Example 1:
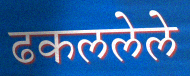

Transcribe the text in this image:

ढकललेले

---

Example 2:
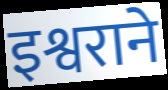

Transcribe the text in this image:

इश्वराने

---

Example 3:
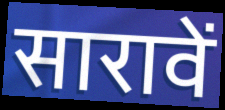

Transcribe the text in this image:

सारावें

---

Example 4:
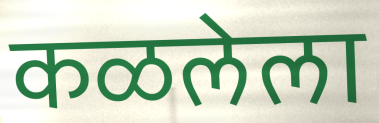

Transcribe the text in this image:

कळलेला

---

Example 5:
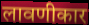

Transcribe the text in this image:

लावणीकार